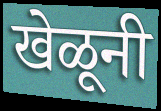
खेळूनी